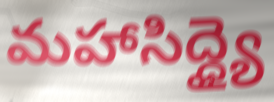
మహాసిద్ధ్యై